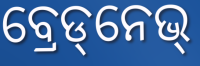
ବ୍ରେଡ୍‌ନେଭ୍